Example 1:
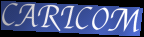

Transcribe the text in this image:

CARICOM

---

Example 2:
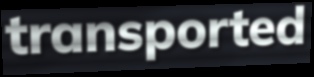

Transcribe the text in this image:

transported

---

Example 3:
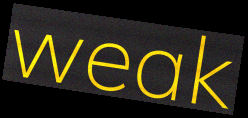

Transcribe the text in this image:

weak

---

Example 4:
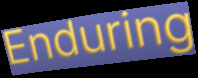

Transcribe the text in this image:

Enduring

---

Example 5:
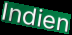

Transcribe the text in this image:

Indien